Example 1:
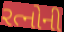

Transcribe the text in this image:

રત્નોની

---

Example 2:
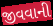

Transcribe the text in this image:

જીવવાની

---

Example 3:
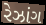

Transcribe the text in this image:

રેઝાંગ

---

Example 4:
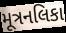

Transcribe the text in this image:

મૂત્રનલિકા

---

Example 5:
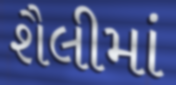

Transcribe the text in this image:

શૈલીમાં